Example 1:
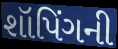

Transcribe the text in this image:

શૉપિંગની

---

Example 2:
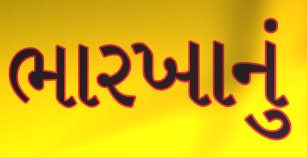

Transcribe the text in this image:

ભારખાનું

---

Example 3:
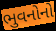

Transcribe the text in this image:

ભુવનોનો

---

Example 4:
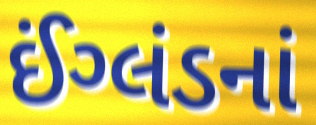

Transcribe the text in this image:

ઈંગ્લંડનાં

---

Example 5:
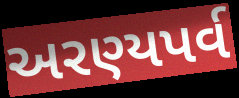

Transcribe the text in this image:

અરણ્યપર્વ